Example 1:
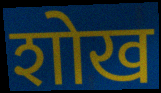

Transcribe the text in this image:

शोख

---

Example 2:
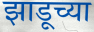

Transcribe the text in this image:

झाडूच्या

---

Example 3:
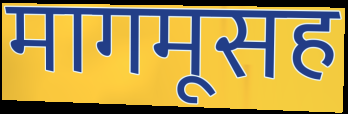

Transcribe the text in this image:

मागमूसह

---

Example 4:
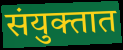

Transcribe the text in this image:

संयुक्तात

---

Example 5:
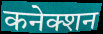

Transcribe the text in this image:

कनेक्शन